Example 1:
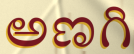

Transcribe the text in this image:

అణగి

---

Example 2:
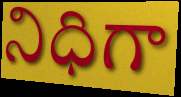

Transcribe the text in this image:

నిధిగా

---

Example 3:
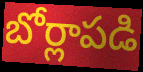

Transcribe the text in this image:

బోర్లాపడి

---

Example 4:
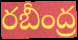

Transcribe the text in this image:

రబీంద్ర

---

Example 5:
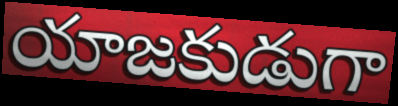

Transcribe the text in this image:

యాజకుడుగా